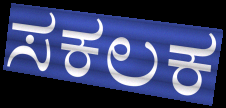
ಸಕಲಕ